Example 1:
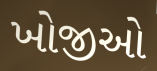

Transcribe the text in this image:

ખોજીઓ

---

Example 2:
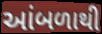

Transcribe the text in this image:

આંબળાથી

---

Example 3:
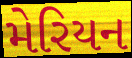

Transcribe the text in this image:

મેરિયન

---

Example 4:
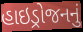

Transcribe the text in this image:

હાઇડ્રોજનનું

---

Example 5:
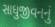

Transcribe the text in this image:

સાધુજીવનનું